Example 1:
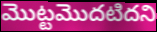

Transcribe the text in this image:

మొట్టమొదటిదని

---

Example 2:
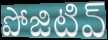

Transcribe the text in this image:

పోజిటివ్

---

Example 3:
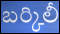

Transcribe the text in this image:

బర్కిలీ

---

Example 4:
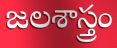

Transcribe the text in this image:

జలశాస్త్రం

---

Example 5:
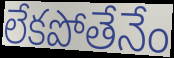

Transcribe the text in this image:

లేకపోతేనేం